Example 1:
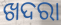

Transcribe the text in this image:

ଖଦରା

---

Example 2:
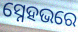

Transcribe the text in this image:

ସ୍ନେହଭରେ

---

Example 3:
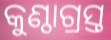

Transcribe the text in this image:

କୁଣ୍ଠାଗ୍ରସ୍ତ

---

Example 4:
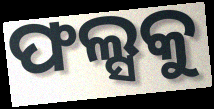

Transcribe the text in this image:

ଫଲ୍ସକୁ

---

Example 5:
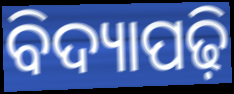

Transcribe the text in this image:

ବିଦ୍ୟାପଢ଼ି